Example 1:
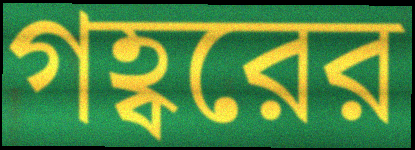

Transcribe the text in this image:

গহ্বরের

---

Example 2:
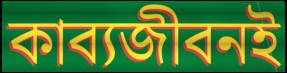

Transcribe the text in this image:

কাব্যজীবনই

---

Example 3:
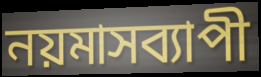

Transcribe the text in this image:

নয়মাসব্যাপী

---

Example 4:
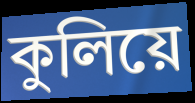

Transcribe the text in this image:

কুলিয়ে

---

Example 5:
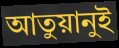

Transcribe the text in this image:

আতুয়ানুই